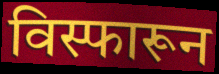
विस्फारून